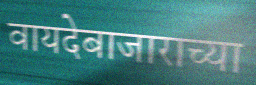
वायदेबाजाराच्या